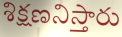
శిక్షణనిస్తారు